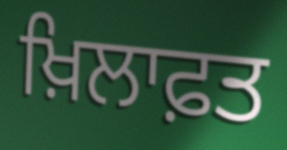
ਖ਼ਿਲਾਫ਼ਤ